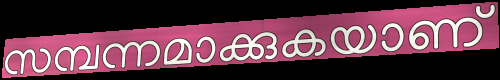
സമ്പന്നമാക്കുകയാണ്